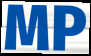
MP